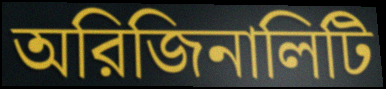
অরিজিনালিটি